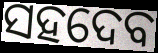
ସହଦେବ